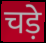
चड़े